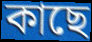
কাছে